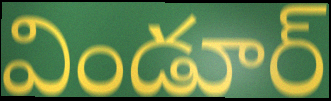
విండూర్